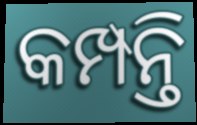
କମ୍ପନ୍ତି